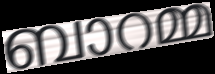
ബാറമ്മ